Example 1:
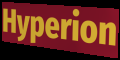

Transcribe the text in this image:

Hyperion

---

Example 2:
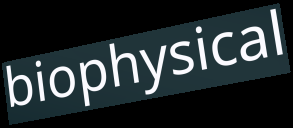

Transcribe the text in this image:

biophysical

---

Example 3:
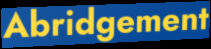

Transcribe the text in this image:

Abridgement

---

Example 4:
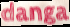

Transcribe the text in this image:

danga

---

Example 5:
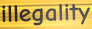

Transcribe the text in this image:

illegality